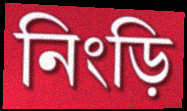
নিংড়ি